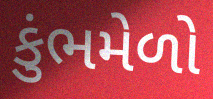
કુંભમેળો